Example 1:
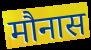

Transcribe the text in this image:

मौनास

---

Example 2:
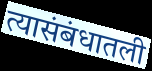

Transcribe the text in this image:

त्यासंबंधातली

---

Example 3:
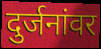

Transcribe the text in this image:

दुर्जनांवर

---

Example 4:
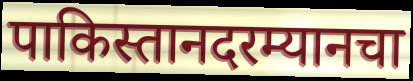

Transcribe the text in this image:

पाकिस्तानदरम्यानचा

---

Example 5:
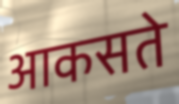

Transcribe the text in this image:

आकसते